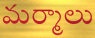
మర్మాలు